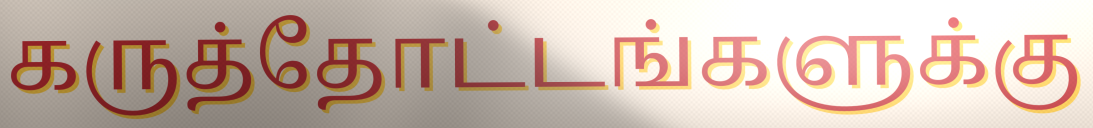
கருத்தோட்டங்களுக்கு